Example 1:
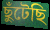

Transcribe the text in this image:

ছুঁটেছি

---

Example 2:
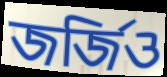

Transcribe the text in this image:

জর্জিও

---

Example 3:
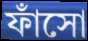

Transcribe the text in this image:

ফাঁসো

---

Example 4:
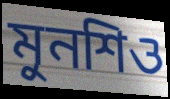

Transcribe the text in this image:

মুনশিও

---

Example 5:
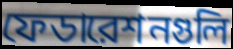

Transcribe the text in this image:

ফেডারেশনগুলি